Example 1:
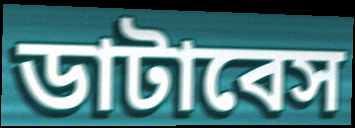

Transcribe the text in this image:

ডাটাবেস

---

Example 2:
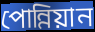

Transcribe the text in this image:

পোন্নিয়ান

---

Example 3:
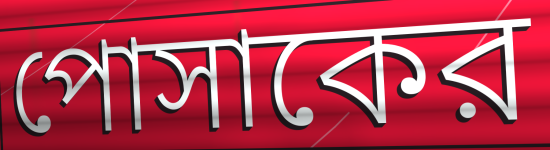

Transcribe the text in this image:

পোসাকের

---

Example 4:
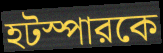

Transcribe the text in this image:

হটস্পারকে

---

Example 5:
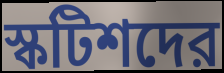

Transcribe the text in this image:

স্কটিশদের